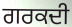
ਗਰਕਦੀ